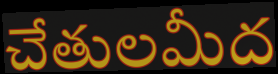
చేతులమీద